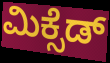
ಮಿಕ್ಸೆಡ್